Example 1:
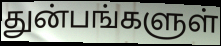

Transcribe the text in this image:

துன்பங்களுள்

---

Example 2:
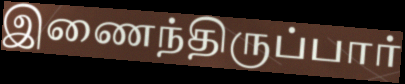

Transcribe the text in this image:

இணைந்திருப்பார்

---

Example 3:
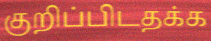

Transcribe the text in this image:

குறிப்பிடதக்க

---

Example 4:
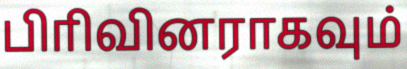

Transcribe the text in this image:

பிரிவினராகவும்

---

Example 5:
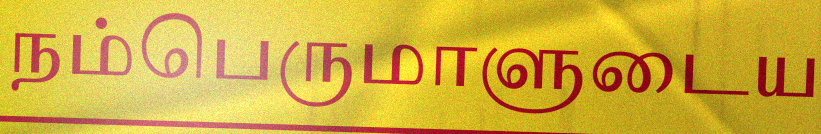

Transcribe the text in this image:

நம்பெருமாளுடைய